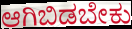
ಆಗಿಬಿಡಬೇಕು